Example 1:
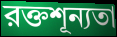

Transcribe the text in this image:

রক্তশূন্যতা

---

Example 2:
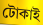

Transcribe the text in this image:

টোকাই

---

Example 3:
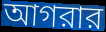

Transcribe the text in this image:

আগরার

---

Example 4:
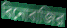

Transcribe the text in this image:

বিনোবাজির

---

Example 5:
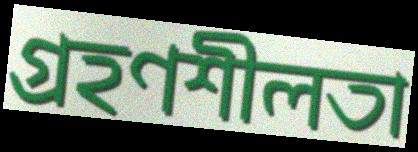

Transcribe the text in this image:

গ্রহণশীলতা